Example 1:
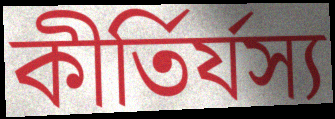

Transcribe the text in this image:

কীর্তির্যস্য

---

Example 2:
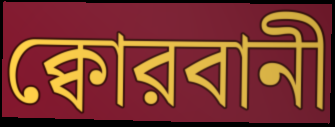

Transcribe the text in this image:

ক্বোরবানী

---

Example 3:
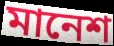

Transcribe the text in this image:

মানেশ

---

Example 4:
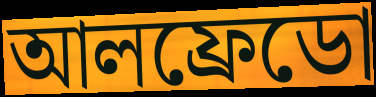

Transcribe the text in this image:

আলফ্রেডো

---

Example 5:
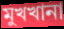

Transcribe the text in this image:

মুখখানা